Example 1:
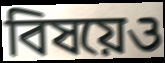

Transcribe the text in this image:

বিষয়েও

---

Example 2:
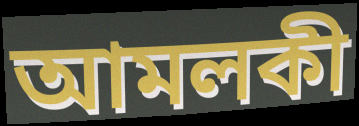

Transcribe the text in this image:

আমলকী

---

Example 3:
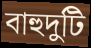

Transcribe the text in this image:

বাহুদুটি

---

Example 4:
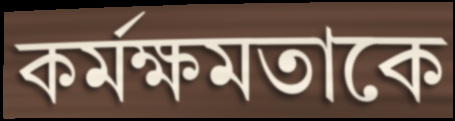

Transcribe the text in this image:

কর্মক্ষমতাকে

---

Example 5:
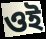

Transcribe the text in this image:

ওই